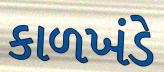
કાળખંડે